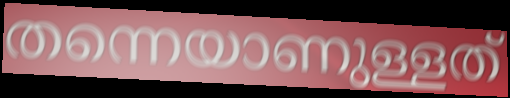
തന്നെയാണുള്ളത്